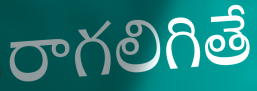
రాగలిగితే